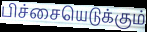
பிச்சையெடுக்கும்